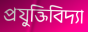
প্রযুক্তিবিদ্যা